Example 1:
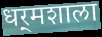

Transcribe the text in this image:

धर्मशाला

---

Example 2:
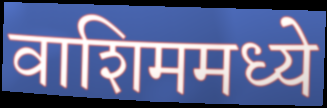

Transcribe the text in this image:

वाशिममध्ये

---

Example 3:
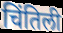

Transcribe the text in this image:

चिंतिली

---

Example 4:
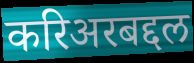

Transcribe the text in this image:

करिअरबद्दल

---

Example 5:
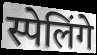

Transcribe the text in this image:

स्पेलिंगे